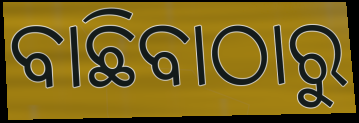
ବାଛିବାଠାରୁ